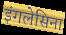
इंगलेसिना